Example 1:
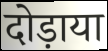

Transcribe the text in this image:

दोड़ाया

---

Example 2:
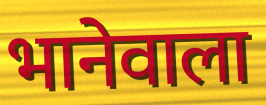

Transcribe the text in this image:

भानेवाला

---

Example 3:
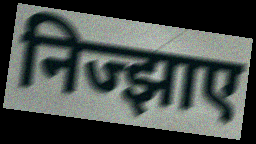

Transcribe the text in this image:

निज्झाए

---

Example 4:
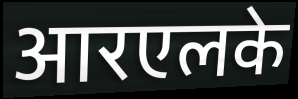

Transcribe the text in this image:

आरएलके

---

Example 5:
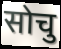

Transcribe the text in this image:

सोचु